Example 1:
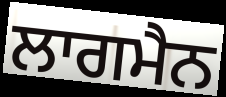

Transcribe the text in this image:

ਲਾਗਮੈਨ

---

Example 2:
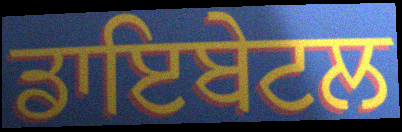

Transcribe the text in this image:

ਡਾਇਬੇਟਲ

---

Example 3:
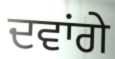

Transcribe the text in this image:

ਦਵਾਂਗੇ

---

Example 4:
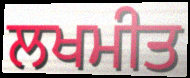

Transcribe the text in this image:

ਲਖਮੀਤ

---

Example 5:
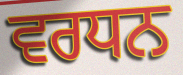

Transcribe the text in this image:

ਵਰਧਨ